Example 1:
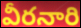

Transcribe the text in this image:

వీరనారి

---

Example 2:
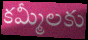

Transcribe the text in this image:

కమ్మీలకు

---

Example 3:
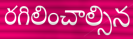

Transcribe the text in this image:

రగిలించాల్సిన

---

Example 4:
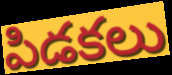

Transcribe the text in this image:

పిడకలు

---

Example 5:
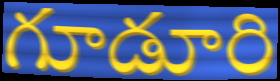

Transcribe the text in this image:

గూడూరి